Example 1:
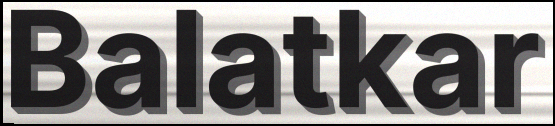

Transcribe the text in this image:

Balatkar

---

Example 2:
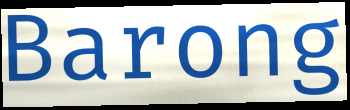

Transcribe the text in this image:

Barong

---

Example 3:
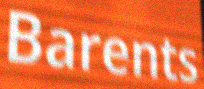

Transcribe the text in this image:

Barents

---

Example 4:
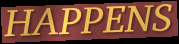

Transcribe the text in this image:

HAPPENS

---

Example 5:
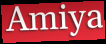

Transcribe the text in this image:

Amiya